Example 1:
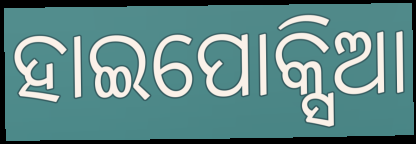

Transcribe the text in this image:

ହାଇପୋକ୍ସିଆ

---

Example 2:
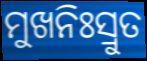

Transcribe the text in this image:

ମୁଖନିଃସ୍ରୁତ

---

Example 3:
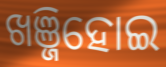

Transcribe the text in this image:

ଖଞ୍ଜିହୋଇ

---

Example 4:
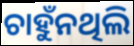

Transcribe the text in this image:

ଚାହୁଁନଥିଲି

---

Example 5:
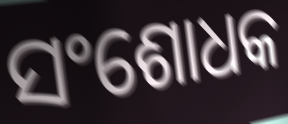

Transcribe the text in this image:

ସଂଶୋଧକ